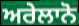
ਅਰੇਲਾਨੋ